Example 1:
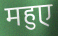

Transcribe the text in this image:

महुए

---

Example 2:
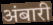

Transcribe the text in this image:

अंबारी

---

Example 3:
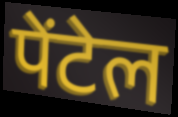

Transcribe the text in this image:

पेंटेल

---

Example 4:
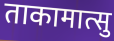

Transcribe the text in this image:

ताकामात्सु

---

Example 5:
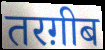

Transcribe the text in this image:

तरग़ीब